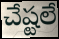
చేష్టలే